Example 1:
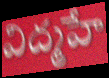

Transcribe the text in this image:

విద్మహే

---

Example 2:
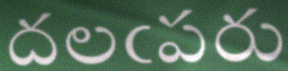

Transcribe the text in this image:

దలఁపరు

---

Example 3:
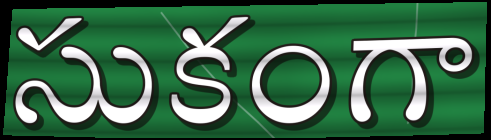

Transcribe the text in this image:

సుకంగా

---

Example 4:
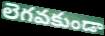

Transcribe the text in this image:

లెగవకుండా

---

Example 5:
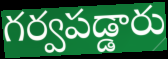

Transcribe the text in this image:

గర్వపడ్డారు